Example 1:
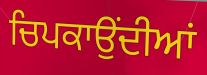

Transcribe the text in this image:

ਚਿਪਕਾਉਂਦੀਆਂ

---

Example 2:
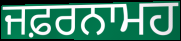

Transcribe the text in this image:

ਜਫ਼ਰਨਾਮਹ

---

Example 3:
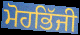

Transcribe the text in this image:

ਮੋਹਭਿੱਜੀ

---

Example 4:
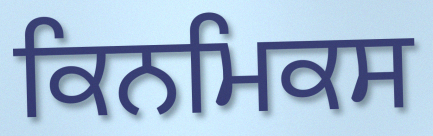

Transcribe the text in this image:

ਕਿਨਮਿਕਸ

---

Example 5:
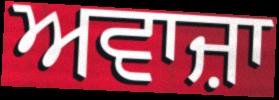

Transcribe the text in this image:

ਅਵਾਜ਼ਾ